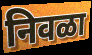
निवळा